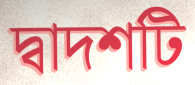
দ্বাদশটি